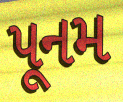
પૂનમ